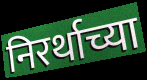
निरर्थाच्या